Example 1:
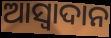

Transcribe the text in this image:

ଆସ୍ୱାଦାନ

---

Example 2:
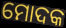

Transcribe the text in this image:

ମୋଦକ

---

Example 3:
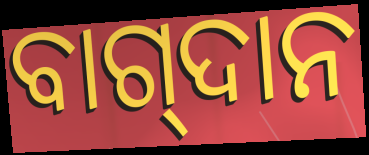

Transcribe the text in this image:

ବାଗ୍‍ଦାନ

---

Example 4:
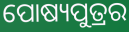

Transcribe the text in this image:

ପୋଷ୍ୟପୁତ୍ରର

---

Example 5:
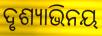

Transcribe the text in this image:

ଦୃଶ୍ୟାଭିନୟ